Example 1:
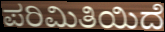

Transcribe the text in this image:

ಪರಿಮಿತಿಯಿದೆ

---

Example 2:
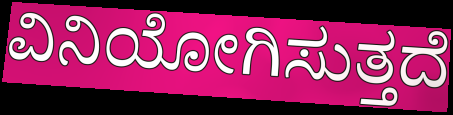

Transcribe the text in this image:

ವಿನಿಯೋಗಿಸುತ್ತದೆ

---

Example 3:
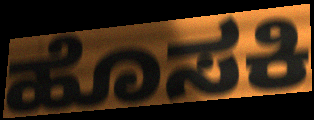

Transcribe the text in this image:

ಹೊಸಕಿ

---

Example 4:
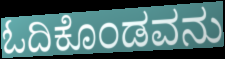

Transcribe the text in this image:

ಓದಿಕೊಂಡವನು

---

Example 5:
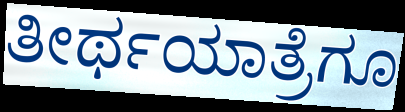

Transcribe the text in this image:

ತೀರ್ಥಯಾತ್ರೆಗೂ